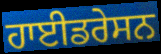
ਹਾਈਡਰੇਸਨ